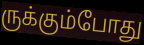
ருக்கும்போது